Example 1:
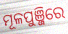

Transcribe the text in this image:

ମୂଳପୁଞ୍ଜିରେ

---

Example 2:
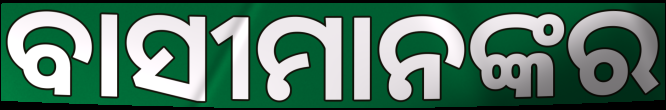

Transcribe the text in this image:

ବାସୀମାନଙ୍କର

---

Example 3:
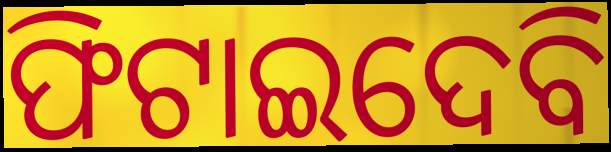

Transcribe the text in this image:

ଫିଟାଇଦେବି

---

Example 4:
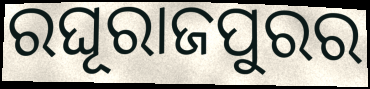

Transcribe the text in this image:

ରଘୂରାଜପୁରର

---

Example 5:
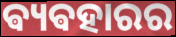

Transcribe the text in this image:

ଵ୍ୟଵହାରର